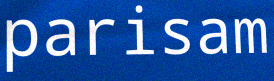
parisam